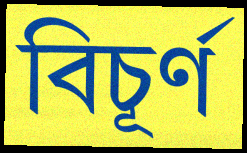
বিচূর্ণ